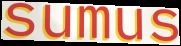
sumus